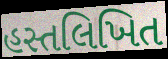
હસ્તલિખિત